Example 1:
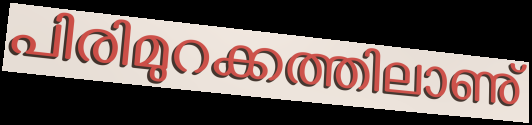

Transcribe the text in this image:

പിരിമുറക്കത്തിലാണു്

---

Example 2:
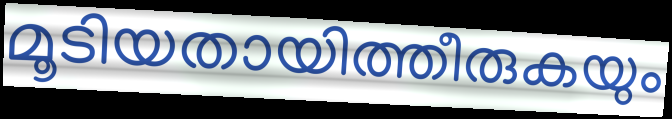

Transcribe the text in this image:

മൂടിയതായിത്തീരുകയും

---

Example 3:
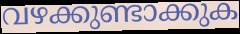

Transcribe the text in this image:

വഴക്കുണ്ടാക്കുക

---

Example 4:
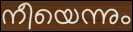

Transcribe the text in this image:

നീയെന്നും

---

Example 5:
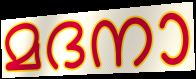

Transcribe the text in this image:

മദനാ